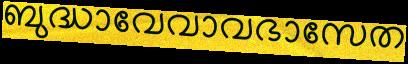
ബുദ്ധാവേവാവഭാസേത